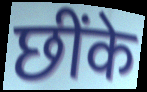
छींके